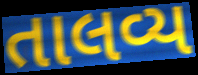
તાલવ્ય